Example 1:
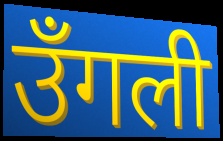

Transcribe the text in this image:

उँगली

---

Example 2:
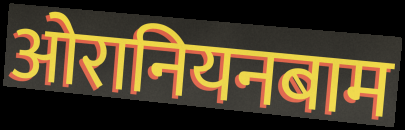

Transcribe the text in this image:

ओरानियनबाम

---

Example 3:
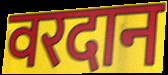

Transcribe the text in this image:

वरदान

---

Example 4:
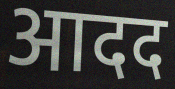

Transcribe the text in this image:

आदद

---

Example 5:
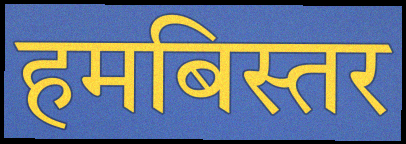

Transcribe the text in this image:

हमबिस्तर